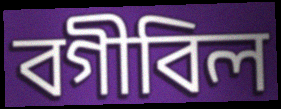
বগীবিল